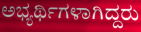
ಅಭ್ಯರ್ಥಿಗಳಾಗಿದ್ದರು